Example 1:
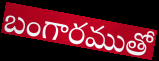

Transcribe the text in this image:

బంగారముతో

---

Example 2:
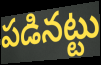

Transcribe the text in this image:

పడినట్టు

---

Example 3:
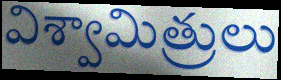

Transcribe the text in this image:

విశ్వామిత్రులు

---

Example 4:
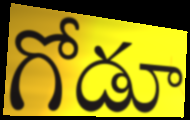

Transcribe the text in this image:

గోడూ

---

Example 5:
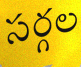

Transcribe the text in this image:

సర్గల